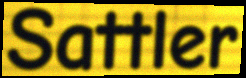
Sattler